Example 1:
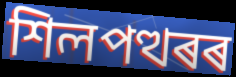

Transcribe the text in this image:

শিলপত্থৰৰ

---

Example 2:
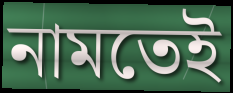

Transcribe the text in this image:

নামতেই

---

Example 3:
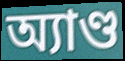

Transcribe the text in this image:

অ্যাণ্ড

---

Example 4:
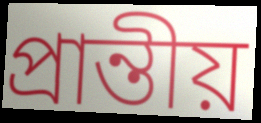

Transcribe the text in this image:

প্ৰান্তীয়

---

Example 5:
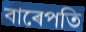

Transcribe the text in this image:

বাৰেপতি